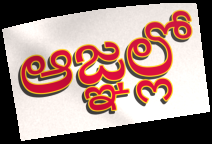
ఆజ్ఞల్లో